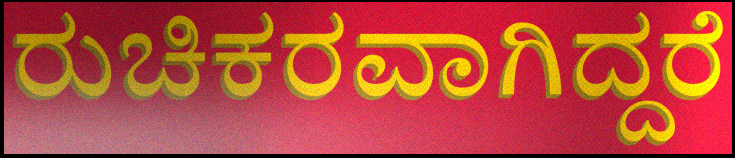
ರುಚಿಕರವಾಗಿದ್ದರೆ